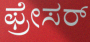
ಫ್ರೇಸರ್